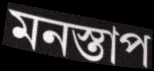
মনস্তাপ